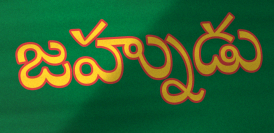
జహ్నుడు